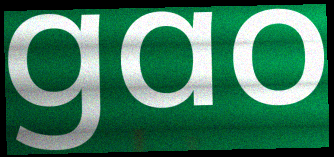
gao